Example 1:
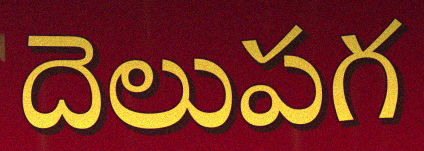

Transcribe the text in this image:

దెలుపగ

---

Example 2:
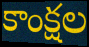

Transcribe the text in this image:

కాంక్షల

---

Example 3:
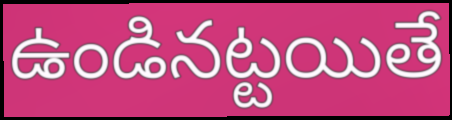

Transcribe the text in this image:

ఉండినట్టయితే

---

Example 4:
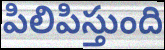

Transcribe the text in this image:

పిలిపిస్తుంది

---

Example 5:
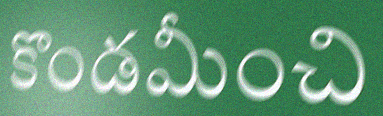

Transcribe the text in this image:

కొండమీంచి